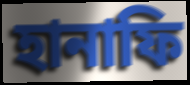
হানাফি